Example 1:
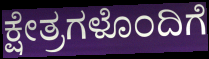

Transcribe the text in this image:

ಕ್ಷೇತ್ರಗಳೊಂದಿಗೆ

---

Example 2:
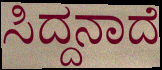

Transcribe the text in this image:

ಸಿದ್ದನಾದೆ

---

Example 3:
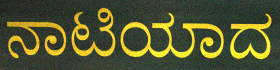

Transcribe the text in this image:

ನಾಟಿಯಾದ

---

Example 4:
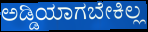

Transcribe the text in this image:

ಅಡ್ಡಿಯಾಗಬೇಕಿಲ್ಲ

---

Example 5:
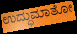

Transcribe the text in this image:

ಉದ್ಧುಮಾತೋ